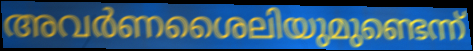
അവർണശൈലിയുമുണ്ടെന്ന്